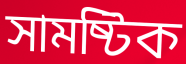
সামষ্টিক